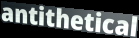
antithetical